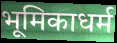
भूमिकाधर्म